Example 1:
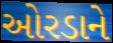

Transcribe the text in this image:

ઓરડાને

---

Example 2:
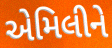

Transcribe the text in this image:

એમિલીને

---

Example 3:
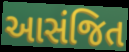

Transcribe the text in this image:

આસંજિત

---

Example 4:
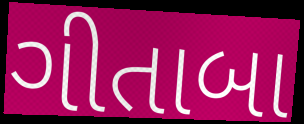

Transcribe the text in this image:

ગીતાબા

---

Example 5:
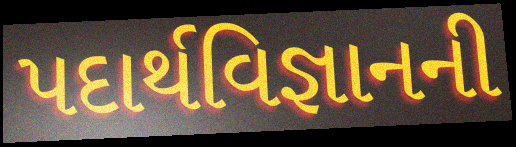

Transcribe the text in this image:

પદાર્થવિજ્ઞાનની